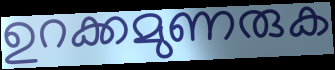
ഉറക്കമുണരുക